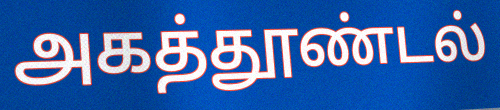
அகத்தூண்டல்